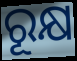
ରୂକ୍ଷ